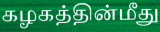
கழகத்தின்மீது